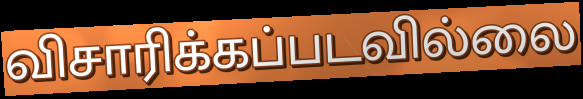
விசாரிக்கப்படவில்லை